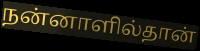
நன்னாளில்தான்